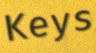
Keys